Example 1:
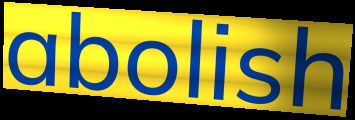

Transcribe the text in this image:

abolish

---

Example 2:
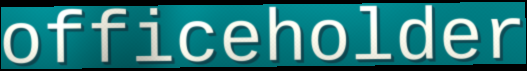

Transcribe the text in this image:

officeholder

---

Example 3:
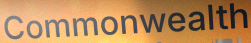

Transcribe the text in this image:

Commonwealth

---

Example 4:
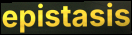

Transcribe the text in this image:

epistasis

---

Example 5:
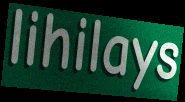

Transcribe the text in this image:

lihilays